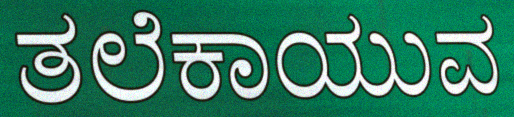
ತಲೆಕಾಯುವ